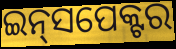
ଇନ୍‌ସପେକ୍ଟର